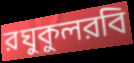
রঘুকুলরবি